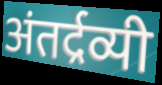
अंतर्द्रव्यी